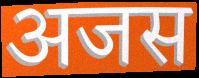
अजस